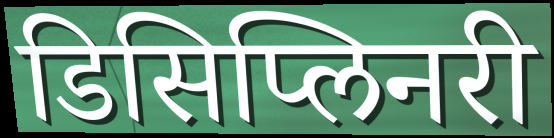
डिसिप्लिनरी